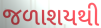
જળાશયથી